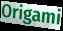
Origami